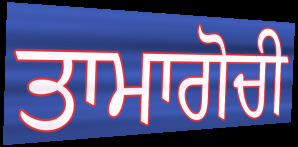
ਤਾਮਾਗੋਚੀ